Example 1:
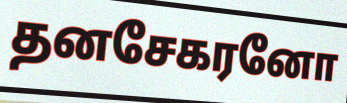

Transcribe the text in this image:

தனசேகரனோ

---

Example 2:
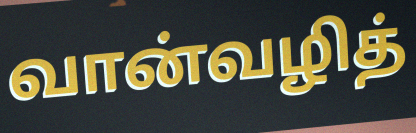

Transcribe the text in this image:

வான்வழித்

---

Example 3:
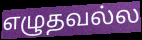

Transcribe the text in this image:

எழுதவல்ல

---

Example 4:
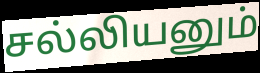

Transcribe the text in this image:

சல்லியனும்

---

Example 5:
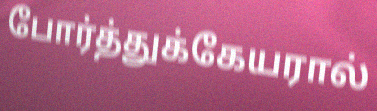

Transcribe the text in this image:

போர்த்துக்கேயரால்